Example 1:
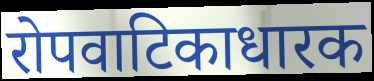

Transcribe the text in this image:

रोपवाटिकाधारक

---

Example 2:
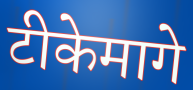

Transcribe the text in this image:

टीकेमागे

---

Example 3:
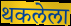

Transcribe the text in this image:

थकलेला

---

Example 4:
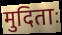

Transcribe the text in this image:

मुदिताः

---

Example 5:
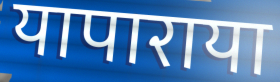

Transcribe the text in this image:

यापाराया